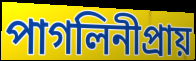
পাগলিনীপ্রায়